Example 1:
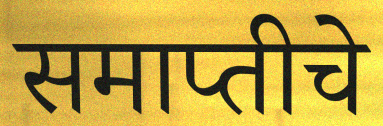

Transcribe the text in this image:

समाप्तीचे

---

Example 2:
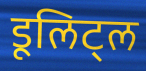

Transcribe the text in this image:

डूलिट्ल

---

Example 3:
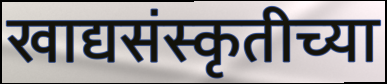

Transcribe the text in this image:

खाद्यसंस्कृतीच्या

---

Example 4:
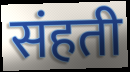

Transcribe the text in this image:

संहती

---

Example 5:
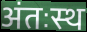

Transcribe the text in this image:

अंतःस्थ